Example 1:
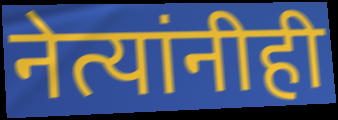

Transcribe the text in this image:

नेत्यांनीही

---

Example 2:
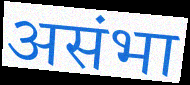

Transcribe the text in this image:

असंभा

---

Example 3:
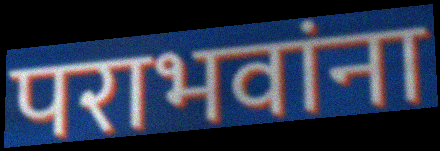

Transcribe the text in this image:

पराभवांना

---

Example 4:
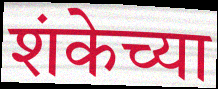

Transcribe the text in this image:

शंकेच्या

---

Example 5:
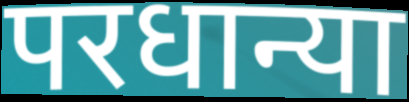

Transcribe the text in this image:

परधान्या